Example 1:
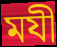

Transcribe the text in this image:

মযী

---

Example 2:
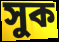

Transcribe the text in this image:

সুক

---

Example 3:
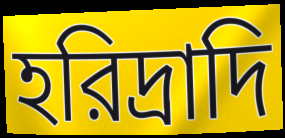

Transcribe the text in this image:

হরিদ্রাদি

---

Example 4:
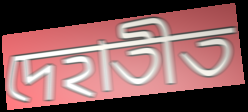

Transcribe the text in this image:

দেহাতীত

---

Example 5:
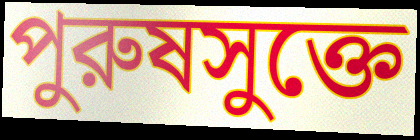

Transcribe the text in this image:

পুরুষসুক্তে